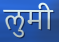
लुमी